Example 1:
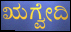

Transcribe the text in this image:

ಋಗ್ವೇದಿ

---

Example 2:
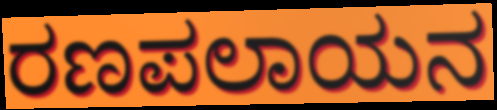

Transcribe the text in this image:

ರಣಪಲಾಯನ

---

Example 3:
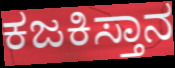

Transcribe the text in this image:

ಕಜಕಿಸ್ತಾನ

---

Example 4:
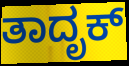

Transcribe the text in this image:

ತಾದೃಕ್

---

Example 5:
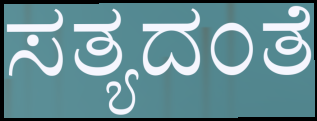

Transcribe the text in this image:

ಸತ್ಯದಂತೆ